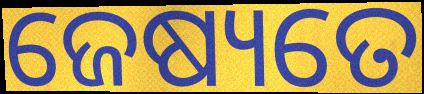
ଜେଷ୍ୟତେ